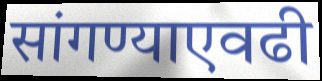
सांगण्याएवढी